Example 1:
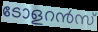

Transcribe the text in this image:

ടോളറൻസ്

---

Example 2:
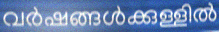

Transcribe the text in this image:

വർഷങ്ങൾക്കുള്ളിൽ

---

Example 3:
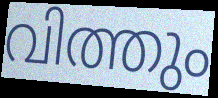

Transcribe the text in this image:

വിത്തും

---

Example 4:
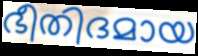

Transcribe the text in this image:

ഭീതിദമായ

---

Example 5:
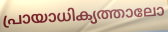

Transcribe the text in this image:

പ്രായാധിക്യത്താലോ